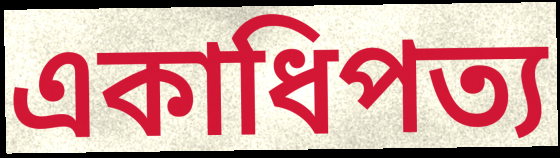
একাধিপত্য